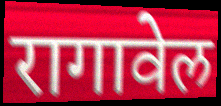
रागावेल